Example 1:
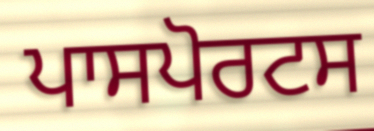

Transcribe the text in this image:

ਪਾਸਪੋਰਟਸ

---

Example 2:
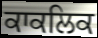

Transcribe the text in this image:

ਕਾਕਲਿਕ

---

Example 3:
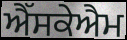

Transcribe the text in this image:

ਐੱਸਕੇਐਮ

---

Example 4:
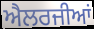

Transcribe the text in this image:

ਐਲਰਜੀਆਂ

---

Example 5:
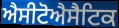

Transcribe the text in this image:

ਐਸੀਟੋਐਸੈਟਿਕ